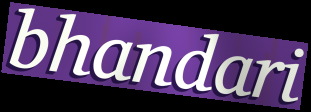
bhandari